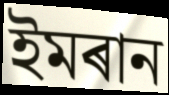
ইমৰান